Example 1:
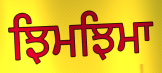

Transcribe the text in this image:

ਝਿਮਝਿਮਾ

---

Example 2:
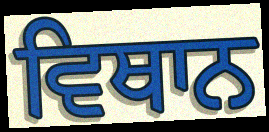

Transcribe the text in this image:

ਵਿਥਾਨ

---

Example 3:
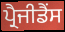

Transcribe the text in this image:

ਪ੍ਰੈਜੀਡੈਂਸ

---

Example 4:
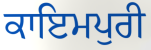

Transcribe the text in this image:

ਕਾਇਮਪੁਰੀ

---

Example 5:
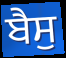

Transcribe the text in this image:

ਬੈਸੁ